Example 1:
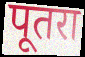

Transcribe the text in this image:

पूतरा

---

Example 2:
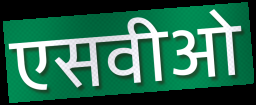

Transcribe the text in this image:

एसवीओ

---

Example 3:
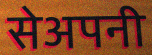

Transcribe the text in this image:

सेअपनी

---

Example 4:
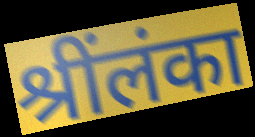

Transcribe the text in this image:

श्रींलंका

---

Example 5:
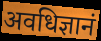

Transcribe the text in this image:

अवधिज्ञानं